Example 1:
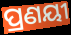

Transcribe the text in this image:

ପ୍ରଣୟୀ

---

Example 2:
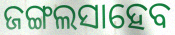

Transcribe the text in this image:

ଜଙ୍ଗଲସାହେବ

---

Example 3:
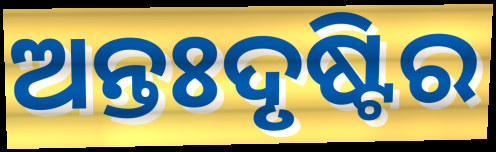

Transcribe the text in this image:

ଅନ୍ତଃଦୃଷ୍ଟିର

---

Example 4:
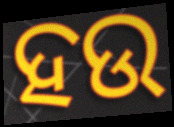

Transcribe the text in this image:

ହଉ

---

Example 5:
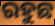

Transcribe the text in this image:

ରହୁଛ